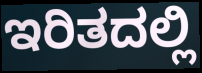
ಇರಿತದಲ್ಲಿ